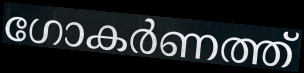
ഗോകർണത്ത്